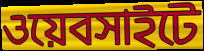
ওয়েবসাইটে